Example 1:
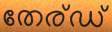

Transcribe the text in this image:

തേര്ഡ്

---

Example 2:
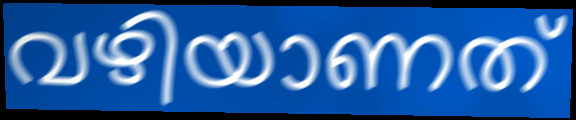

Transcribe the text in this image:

വഴിയാണത്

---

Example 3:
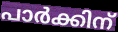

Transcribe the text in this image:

പാർക്കിന്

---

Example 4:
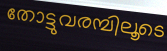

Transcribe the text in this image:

തോട്ടുവരമ്പിലൂടെ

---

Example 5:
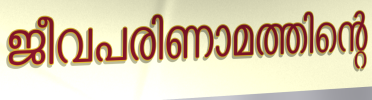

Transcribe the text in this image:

ജീവപരിണാമത്തിന്റെ